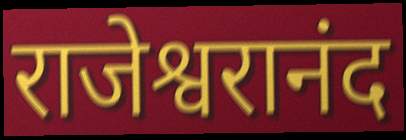
राजेश्वरानंद